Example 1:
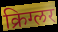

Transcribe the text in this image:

क्रिग्लर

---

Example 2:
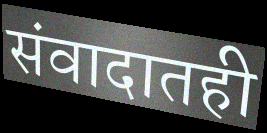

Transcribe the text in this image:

संवादातही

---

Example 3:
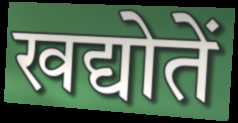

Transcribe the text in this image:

खद्योतें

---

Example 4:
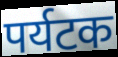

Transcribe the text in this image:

पर्यटक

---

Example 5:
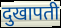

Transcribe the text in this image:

दुखापती